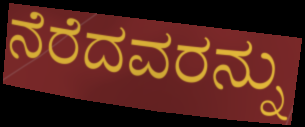
ನೆರೆದವರನ್ನು